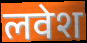
लवेश